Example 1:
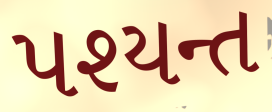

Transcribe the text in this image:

પશ્યન્ત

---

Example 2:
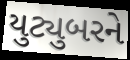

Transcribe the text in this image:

યુટ્યુબરને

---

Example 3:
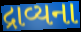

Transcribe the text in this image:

દ્રાવ્યના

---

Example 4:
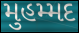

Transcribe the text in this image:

મુહમ્મદ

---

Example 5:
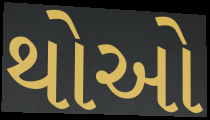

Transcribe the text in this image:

થોઓ